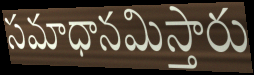
సమాధానమిస్తారు